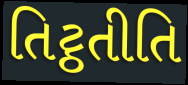
તિટ્ઠતીતિ